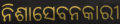
ନିଶାସେବନକାରୀ